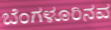
ಬೆಂಗಳೂರಿನವ